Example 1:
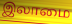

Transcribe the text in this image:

இலாமை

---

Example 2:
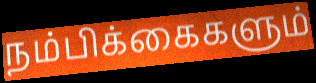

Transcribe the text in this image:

நம்பிக்கைகளும்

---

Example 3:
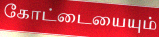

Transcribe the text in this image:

கோட்டையையும்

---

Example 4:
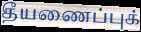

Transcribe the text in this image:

தீயணைப்புக்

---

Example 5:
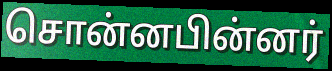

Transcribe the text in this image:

சொன்னபின்னர்